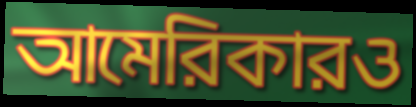
আমেরিকারও